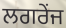
ਲਗਰੇਂਜ